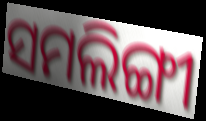
ସମଲିଙ୍ଗୀ